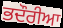
ਭਦੌਰੀਆ